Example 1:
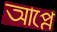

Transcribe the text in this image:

আপ্নে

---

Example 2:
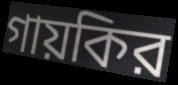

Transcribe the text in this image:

গায়কির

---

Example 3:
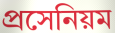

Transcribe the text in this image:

প্রসেনিয়ম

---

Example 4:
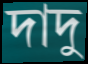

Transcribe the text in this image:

দাদু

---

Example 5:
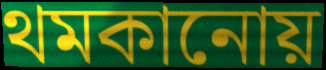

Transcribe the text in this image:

থমকানোয়